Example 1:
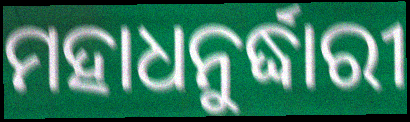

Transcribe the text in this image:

ମହାଧନୁର୍ଦ୍ଧାରୀ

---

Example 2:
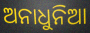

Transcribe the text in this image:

ଅନାଧୁନିଆ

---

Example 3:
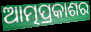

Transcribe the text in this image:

ଆତ୍ମପ୍ରକାଶର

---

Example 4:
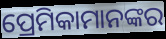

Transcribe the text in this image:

ପ୍ରେମିକାମାନଙ୍କର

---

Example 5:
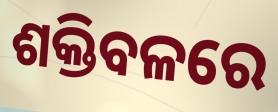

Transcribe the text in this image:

ଶକ୍ତିବଳରେ